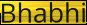
Bhabhi